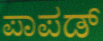
ಪಾಪಡ್